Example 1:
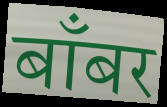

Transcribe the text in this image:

बाँबर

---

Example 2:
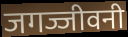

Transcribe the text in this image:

जगज्जीवनी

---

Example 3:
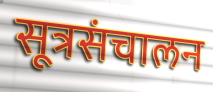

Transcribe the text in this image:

सूत्रसंचालन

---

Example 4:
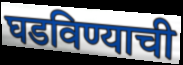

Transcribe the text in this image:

घडविण्याची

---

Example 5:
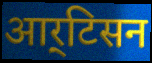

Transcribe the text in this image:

आर्टिसन